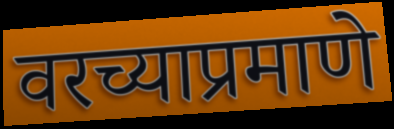
वरच्याप्रमाणे